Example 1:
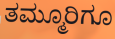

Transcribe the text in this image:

ತಮ್ಮೂರಿಗೂ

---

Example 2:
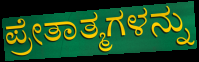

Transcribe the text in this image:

ಪ್ರೇತಾತ್ಮಗಳನ್ನು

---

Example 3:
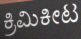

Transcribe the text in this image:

ಕ್ರಿಮಿಕೀಟ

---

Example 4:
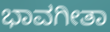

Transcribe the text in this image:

ಭಾವಗೀತಾ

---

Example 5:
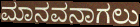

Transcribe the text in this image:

ಮಾನವನಾಗಲು